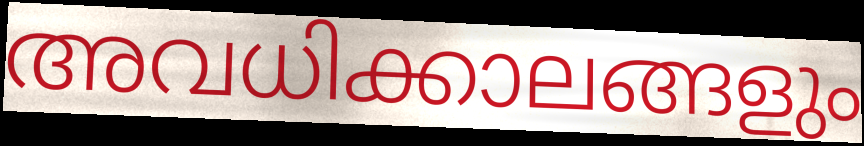
അവധിക്കാലങ്ങളും